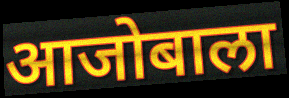
आजोबाला